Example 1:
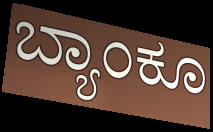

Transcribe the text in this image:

ಬ್ಯಾಂಕೂ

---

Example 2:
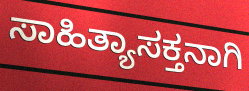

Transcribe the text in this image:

ಸಾಹಿತ್ಯಾಸಕ್ತನಾಗಿ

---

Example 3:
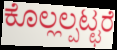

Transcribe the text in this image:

ಕೊಲ್ಲಲ್ಪಟ್ಟರೆ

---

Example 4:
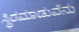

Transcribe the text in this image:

ಸ್ಥಿರಮಾಡುವೆನು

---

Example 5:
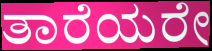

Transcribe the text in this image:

ತಾರೆಯರೇ